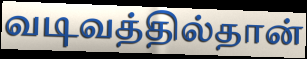
வடிவத்தில்தான்